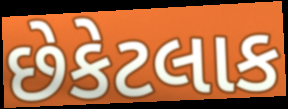
છેકેટલાક